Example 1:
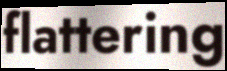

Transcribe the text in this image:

flattering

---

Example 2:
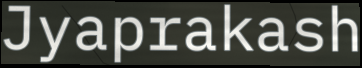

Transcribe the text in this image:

Jyaprakash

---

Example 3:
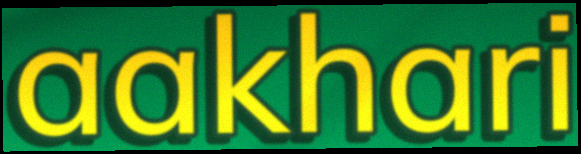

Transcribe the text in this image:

aakhari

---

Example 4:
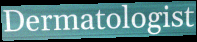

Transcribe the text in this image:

Dermatologist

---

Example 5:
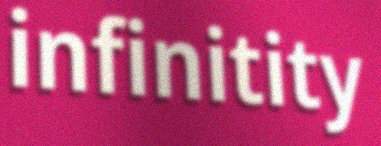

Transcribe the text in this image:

infinitity